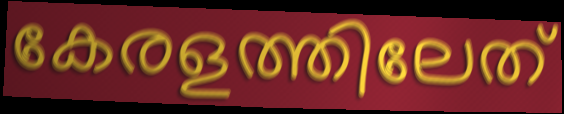
കേരളത്തിലേത്